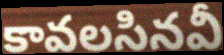
కావలసినవీ